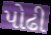
પોઢી